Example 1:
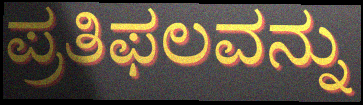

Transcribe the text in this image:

ಪ್ರತಿಫಲವನ್ನು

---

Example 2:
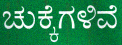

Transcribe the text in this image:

ಚುಕ್ಕೆಗಳಿವೆ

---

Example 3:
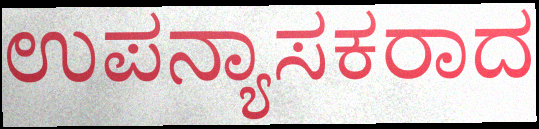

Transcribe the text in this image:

ಉಪನ್ಯಾಸಕರಾದ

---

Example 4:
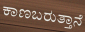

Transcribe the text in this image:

ಕಾಣಬರುತ್ತಾನೆ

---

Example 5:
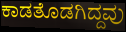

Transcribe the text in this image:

ಕಾಡತೊಡಗಿದ್ದವು